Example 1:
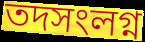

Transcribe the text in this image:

তদসংলগ্ন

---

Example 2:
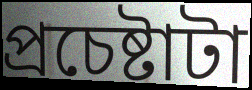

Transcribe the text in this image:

প্রচেষ্টাটা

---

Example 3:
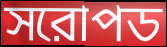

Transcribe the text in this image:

সরোপড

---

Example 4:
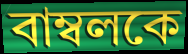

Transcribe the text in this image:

বাম্বলকে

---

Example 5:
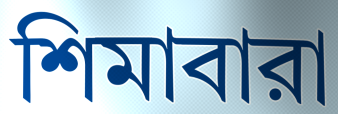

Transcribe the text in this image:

শিমাবারা